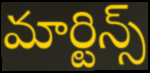
మార్టిన్స్